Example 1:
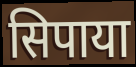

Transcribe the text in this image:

सिपाया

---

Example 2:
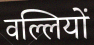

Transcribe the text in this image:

वल्लियों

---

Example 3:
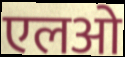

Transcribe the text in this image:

एलओ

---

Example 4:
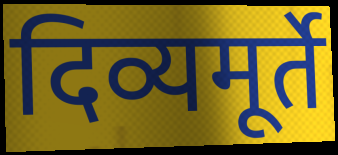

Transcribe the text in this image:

दिव्यमूर्ते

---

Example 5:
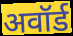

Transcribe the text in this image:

अवॉर्ड